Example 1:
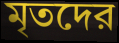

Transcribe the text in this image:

মৃতদের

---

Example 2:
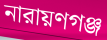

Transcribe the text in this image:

নারায়ণগঞ্জ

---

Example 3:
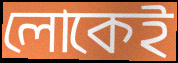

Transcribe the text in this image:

লোকেই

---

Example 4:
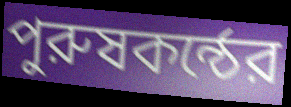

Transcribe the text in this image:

পুরুষকন্ঠের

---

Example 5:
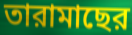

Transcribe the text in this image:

তারামাছের